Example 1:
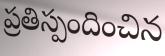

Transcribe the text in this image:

ప్రతిస్పందించిన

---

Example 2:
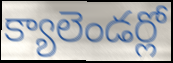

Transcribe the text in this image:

క్యాలెండర్లో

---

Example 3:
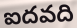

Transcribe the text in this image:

ఐదవది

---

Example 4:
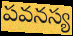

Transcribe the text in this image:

పవనస్య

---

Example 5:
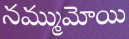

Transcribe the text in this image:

నమ్ముమోయి